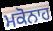
ਮਕੋਨਾਹ